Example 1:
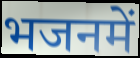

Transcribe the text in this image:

भजनमें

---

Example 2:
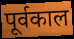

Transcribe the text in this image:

पूर्वकाल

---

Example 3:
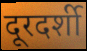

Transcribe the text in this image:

दूरदर्शी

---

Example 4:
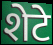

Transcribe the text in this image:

शेटे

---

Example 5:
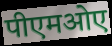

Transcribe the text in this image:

पीएमओए